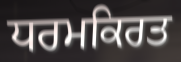
ਧਰਮਕਿਰਤ